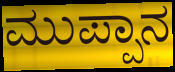
ಮುಪ್ಪಾನ